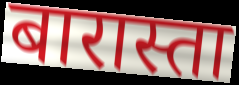
बारास्ता